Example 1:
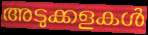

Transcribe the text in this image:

അടുക്കളകൾ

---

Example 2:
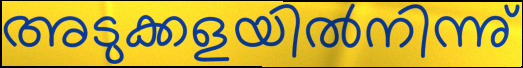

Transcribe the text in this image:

അടുക്കളയിൽനിന്നു്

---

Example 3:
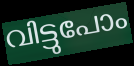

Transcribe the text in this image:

വിട്ടുപോം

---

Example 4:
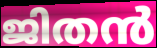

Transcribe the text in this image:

ജിതൻ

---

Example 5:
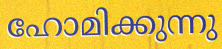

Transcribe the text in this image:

ഹോമിക്കുന്നു